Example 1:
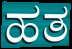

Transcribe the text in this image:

ಹತ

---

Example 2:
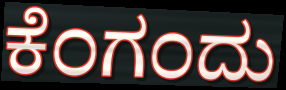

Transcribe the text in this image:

ಕೆಂಗಂದು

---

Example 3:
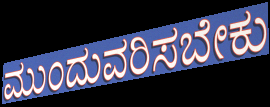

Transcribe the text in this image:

ಮುಂದುವರಿಸಬೇಕು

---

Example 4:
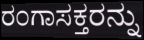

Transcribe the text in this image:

ರಂಗಾಸಕ್ತರನ್ನು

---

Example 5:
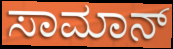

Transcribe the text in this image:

ಸಾಮಾನ್